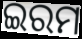
ଇରମ